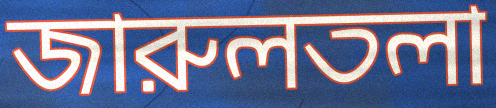
জারুলতলা